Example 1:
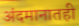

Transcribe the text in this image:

अंदमानातही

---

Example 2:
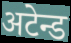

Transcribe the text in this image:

अटेन्ड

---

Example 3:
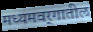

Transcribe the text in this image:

मध्यमवर्गातील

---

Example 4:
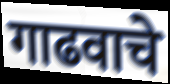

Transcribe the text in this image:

गाढवाचे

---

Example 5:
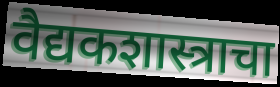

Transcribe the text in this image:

वैद्यकशास्त्राचा